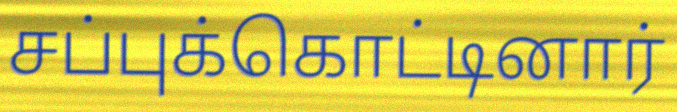
சப்புக்கொட்டினார்